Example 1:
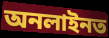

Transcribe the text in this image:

অনলাইনত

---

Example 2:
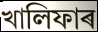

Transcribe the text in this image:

খালিফাৰ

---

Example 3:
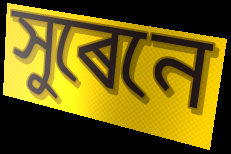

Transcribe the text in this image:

সুৰেনে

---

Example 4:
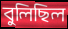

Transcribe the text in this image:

বুলিছিল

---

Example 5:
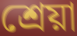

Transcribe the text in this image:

শ্ৰেয়া